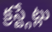
క్రస్ట్గేట్లు